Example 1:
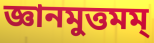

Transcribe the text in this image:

জ্ঞানমুত্তমম্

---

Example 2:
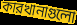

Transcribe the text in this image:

কারখানাগুলো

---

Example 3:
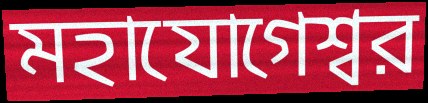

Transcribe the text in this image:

মহাযোগেশ্বর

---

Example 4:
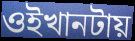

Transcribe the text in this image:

ওইখানটায়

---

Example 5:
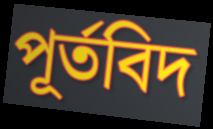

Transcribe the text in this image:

পূর্তবিদ